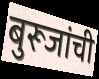
बुरूजांची